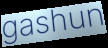
gashun